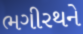
ભગીરથને